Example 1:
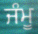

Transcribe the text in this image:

ਜੰਮੂ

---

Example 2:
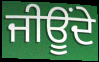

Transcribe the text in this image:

ਜੀਊਂਦੇ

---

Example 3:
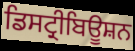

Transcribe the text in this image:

ਡਿਸਟ੍ਰੀਬਿਊਸ਼ਨ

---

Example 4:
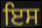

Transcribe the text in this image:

ਇਸ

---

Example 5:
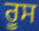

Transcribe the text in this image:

ਰੂਸ